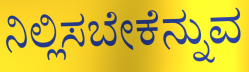
ನಿಲ್ಲಿಸಬೇಕೆನ್ನುವ